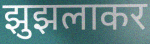
झुझलाकर